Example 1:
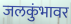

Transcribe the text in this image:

जलकुंभावर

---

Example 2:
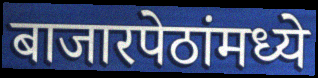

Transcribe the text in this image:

बाजारपेठांमध्ये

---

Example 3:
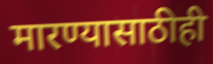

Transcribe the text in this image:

मारण्यासाठीही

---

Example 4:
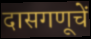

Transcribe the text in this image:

दासगणूचें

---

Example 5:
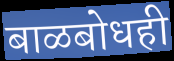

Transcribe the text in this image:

बाळबोधही